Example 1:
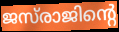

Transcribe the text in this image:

ജസ്‌രാജിന്റെ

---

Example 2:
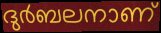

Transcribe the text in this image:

ദുർബലനാണ്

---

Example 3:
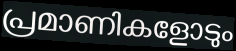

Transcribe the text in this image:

പ്രമാണികളോടും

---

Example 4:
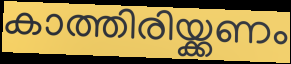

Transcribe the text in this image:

കാത്തിരിയ്ക്കണം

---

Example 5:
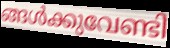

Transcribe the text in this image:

ങ്ങൾക്കുവേണ്ടി